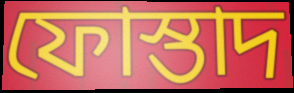
ফোস্তাদ